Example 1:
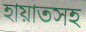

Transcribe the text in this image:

হায়াতসহ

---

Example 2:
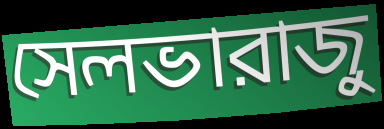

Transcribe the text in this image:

সেলভারাজু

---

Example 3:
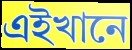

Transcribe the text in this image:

এইখানে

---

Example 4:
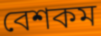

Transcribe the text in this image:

বেশকম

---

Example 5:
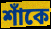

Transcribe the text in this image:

শাঁকে